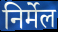
निर्मेल